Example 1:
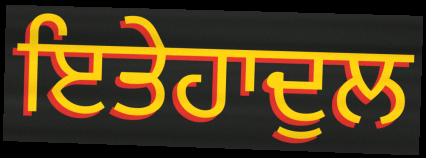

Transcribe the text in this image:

ਇਤੇਹਾਦੁਲ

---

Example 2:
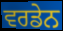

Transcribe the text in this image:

ਵਰਡੇਨ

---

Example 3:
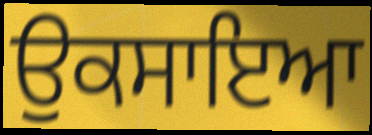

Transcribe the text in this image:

ਉਕਸਾਇਆ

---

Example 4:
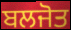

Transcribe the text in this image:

ਬਲਜੋਤ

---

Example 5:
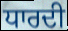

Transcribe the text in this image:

ਧਾਰਦੀ